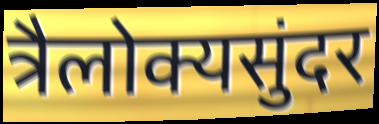
त्रैलोक्यसुंदर